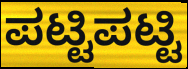
ಪಟ್ಟಿಪಟ್ಟಿ